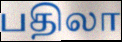
பதிலா